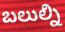
బలుల్ని